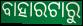
ବାହାରଟାରୁ